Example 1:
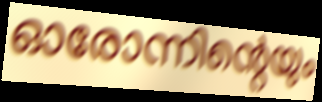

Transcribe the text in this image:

ഓരോന്നിന്റെയും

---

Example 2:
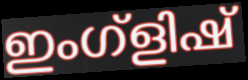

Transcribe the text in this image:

ഇംഗ്ളിഷ്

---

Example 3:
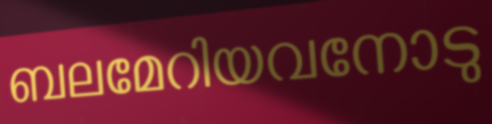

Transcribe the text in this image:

ബലമേറിയവനോടു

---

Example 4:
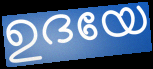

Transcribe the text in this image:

ഉദയേ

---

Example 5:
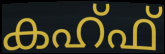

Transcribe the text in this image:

കഹ്ഫ്